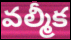
వల్మీక